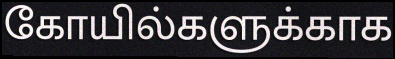
கோயில்களுக்காக